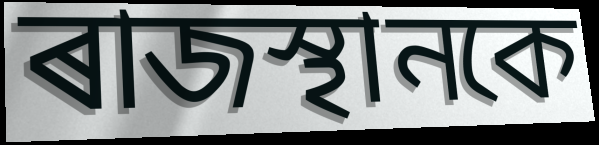
ৰাজস্থানকে